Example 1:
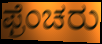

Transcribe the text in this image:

ಫ್ರೆಂಚರು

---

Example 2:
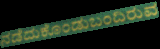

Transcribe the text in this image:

ನಡೆದುಕೊಂಡುಬಂದಿರುವ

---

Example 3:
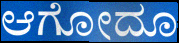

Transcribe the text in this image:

ಆಗೋದೂ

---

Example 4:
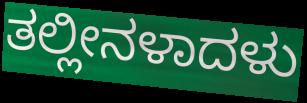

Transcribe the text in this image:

ತಲ್ಲೀನಳಾದಳು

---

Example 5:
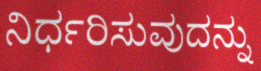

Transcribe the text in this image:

ನಿರ್ಧರಿಸುವುದನ್ನು